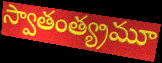
స్వాతంత్య్రమూ